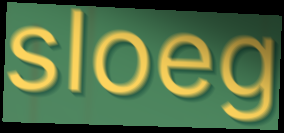
sloeg